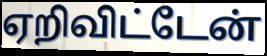
ஏறிவிட்டேன்